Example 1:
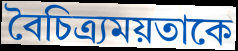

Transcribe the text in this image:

বৈচিত্র্যময়তাকে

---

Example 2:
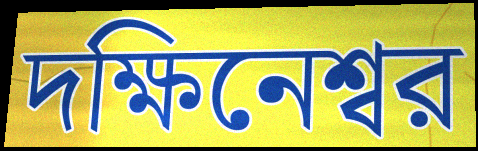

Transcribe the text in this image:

দক্ষিনেশ্বর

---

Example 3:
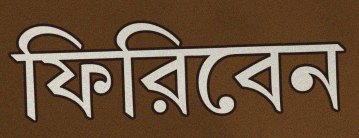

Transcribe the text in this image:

ফিরিবেন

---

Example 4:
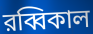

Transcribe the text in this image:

রব্বিকাল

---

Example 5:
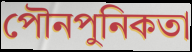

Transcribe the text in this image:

পৌনপুনিকতা